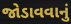
જોડાવવાનું